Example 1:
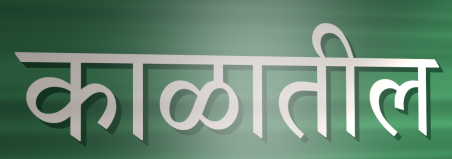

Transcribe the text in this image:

काळातील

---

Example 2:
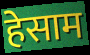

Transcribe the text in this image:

हेसाम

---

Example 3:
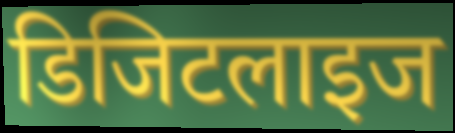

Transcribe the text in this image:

डिजिटलाइज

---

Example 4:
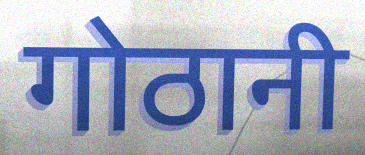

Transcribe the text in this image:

गोठानी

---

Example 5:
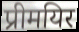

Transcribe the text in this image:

प्रीमयिर